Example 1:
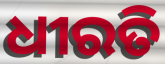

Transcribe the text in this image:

ଧୀରତି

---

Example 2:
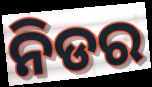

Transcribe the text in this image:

ନିଡର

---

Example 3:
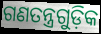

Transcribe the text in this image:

ଗଣତନ୍ତ୍ରଗୁଡ଼ିକ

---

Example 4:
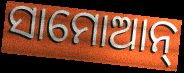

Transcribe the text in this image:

ସାମୋଆନ୍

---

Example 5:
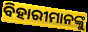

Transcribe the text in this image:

ବିହାରୀମାନଙ୍କୁ